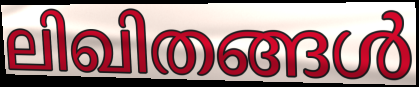
ലിഖിതങ്ങൾ